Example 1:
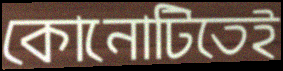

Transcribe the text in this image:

কোনোটিতেই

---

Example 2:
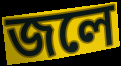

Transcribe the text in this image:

জলে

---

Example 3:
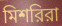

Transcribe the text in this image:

মিশরিরা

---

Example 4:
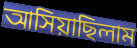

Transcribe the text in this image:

আসিয়াছিলাম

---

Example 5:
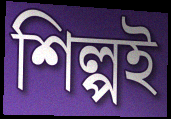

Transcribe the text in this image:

শিল্পই